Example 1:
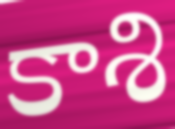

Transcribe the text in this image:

కాశి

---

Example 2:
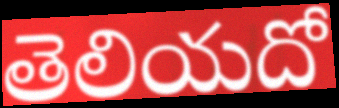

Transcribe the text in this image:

తెలియదో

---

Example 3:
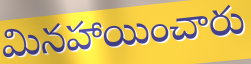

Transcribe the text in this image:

మినహాయించారు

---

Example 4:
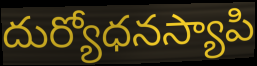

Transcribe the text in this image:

దుర్యోధనస్యాపి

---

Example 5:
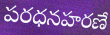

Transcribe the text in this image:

పరధనహరణే